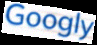
Googly